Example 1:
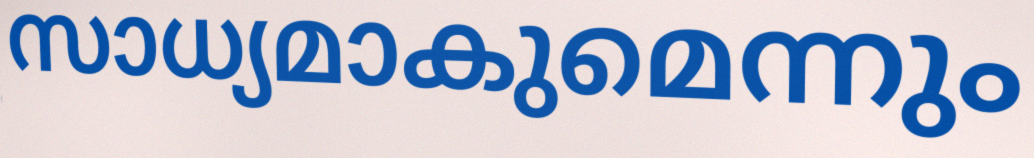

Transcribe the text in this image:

സാധ്യമാകുമെന്നും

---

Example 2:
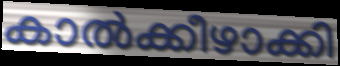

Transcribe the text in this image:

കാൽക്കീഴാക്കി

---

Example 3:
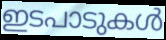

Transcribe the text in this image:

ഇടപാടുകൾ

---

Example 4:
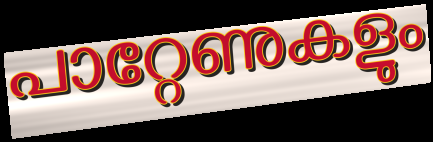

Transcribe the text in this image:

പാറ്റേണുകളും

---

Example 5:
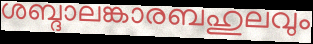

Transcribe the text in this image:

ശബ്ദാലങ്കാരബഹുലവും